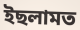
ইছলামত